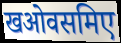
खओवसमिए